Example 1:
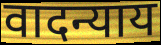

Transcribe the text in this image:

वादन्याय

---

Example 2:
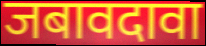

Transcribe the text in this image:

जबावदावा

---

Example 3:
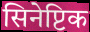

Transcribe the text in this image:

सिनेप्टिक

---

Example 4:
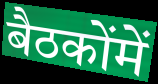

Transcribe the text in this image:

बैठकोंमें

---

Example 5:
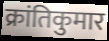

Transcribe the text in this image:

क्रांतिकुमार